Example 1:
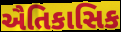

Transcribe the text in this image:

ઐતિકાસિક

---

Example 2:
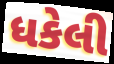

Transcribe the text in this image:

ધકેલી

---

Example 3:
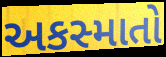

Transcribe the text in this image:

અકસ્માતો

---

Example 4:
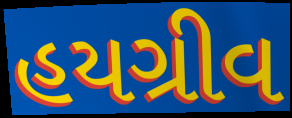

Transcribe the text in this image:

હયગ્રીવ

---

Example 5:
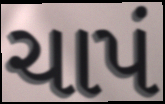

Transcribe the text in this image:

ચાપં